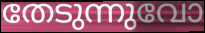
തേടുന്നുവോ